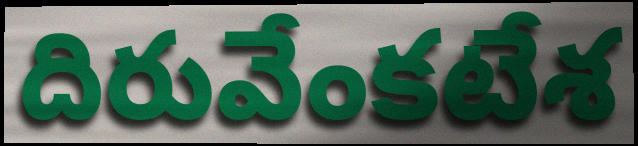
దిరువేంకటేశ